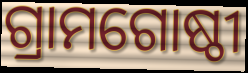
ଗ୍ରାମଗୋଷ୍ଠୀ